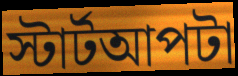
স্টার্টআপটা